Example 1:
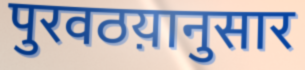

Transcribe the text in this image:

पुरवठय़ानुसार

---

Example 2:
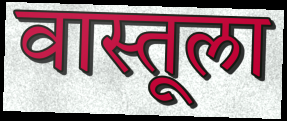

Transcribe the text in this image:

वास्तूला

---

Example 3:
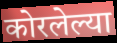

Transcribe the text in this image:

कोरलेल्या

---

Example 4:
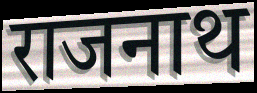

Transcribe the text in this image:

राजनाथ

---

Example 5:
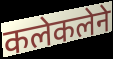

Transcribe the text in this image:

कलेकलेने